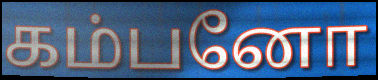
கம்பனோ